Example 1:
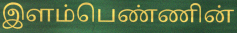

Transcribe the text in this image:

இளம்பெண்ணின்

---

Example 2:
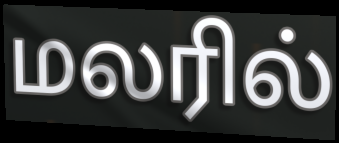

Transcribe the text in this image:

மலரில்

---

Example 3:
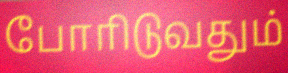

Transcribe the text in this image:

போரிடுவதும்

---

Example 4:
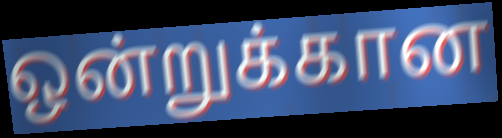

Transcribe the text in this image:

ஒன்றுக்கான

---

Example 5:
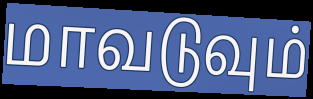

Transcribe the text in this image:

மாவடுவும்